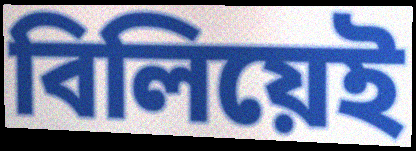
বিলিয়েই